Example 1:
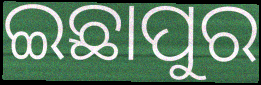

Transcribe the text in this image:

ଇଛାପୁର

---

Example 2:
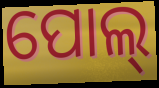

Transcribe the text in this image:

ପୋଲ୍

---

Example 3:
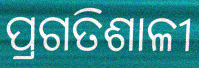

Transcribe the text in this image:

ପ୍ରଗତିଶାଳୀ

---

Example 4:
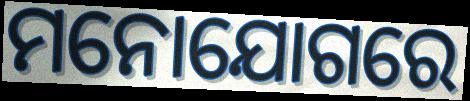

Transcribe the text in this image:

ମନୋଯୋଗରେ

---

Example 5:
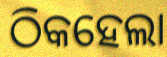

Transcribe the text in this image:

ଠିକହେଲା